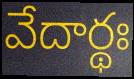
వేదార్థః